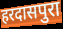
हरदासपुरा